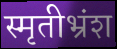
स्मृतीभ्रंश